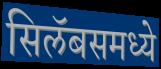
सिलॅबसमध्ये